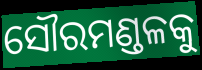
ସୌରମଣ୍ଡଳକୁ